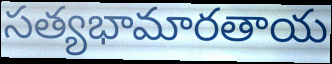
సత్యభామారతాయ